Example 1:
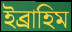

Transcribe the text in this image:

ইব্রাহিম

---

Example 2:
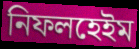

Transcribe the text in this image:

নিফলহেইম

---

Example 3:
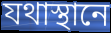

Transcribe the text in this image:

যথাস্থানে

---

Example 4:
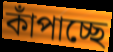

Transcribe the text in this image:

কাঁপাচ্ছে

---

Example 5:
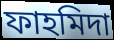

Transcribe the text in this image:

ফাহমিদা